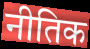
नीतिक